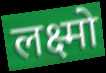
लक्ष्मो